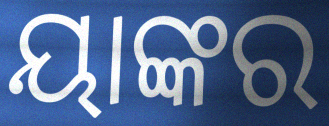
ୟାଙ୍କର